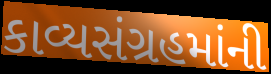
કાવ્યસંગ્રહમાંની